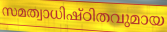
സമത്വാധിഷ്ഠിതവുമായ